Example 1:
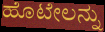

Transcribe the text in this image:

ಹೊಟೇಲನ್ನು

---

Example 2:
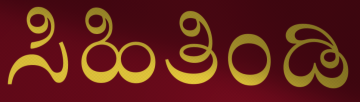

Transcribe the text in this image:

ಸಿಹಿತಿಂಡಿ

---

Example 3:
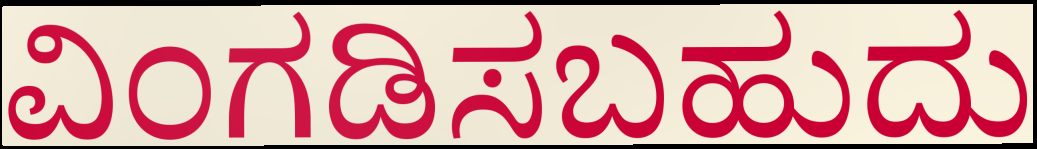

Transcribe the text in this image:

ವಿಂಗಡಿಸಬಹುದು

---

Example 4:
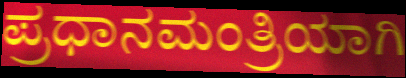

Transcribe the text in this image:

ಪ್ರಧಾನಮಂತ್ರಿಯಾಗಿ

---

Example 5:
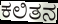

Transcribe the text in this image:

ಕಲಿತನ